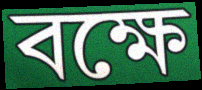
বক্ষে